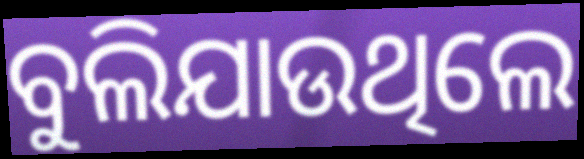
ବୁଲିଯାଉଥିଲେ